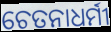
ଚେତନାଧର୍ମୀ